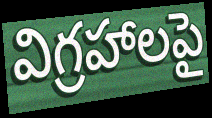
విగ్రహాలపై